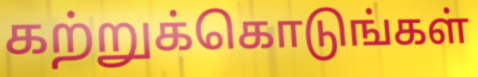
கற்றுக்கொடுங்கள்